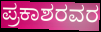
ಪ್ರಕಾಶರವರ